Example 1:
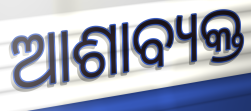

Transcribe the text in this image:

ଆଶାବ୍ୟକ୍ତ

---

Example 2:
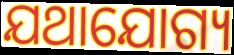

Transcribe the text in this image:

ଯଥାଯୋଗ୍ୟ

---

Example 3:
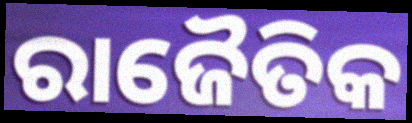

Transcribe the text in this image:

ରାଜୈତିକ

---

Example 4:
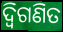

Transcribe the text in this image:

ଦ୍ୱିଗଣିତ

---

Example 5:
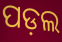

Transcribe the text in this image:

ପଡ଼ଲ